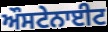
ਔਸਟੇਨਾਈਟ